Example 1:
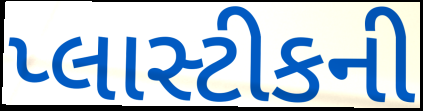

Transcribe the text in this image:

પ્લાસ્ટીકની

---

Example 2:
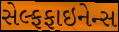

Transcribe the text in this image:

સેલ્ફફાઇનેન્સ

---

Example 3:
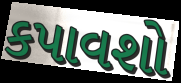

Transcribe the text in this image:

કપાવશો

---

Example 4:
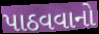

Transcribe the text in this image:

પાઠવવાનો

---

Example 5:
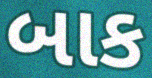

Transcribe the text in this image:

બાક